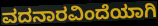
ವದನಾರವಿಂದೆಯಾಗಿ